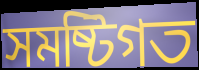
সমষ্টিগত